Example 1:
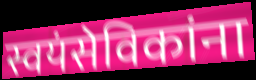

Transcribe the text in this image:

स्वयंसेविकांना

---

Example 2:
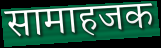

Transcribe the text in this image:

सामाहजक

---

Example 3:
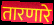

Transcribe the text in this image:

तारणारे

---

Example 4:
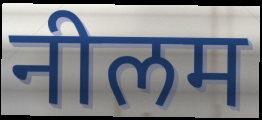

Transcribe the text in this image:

नीलम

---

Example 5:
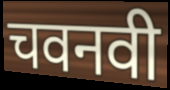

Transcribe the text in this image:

चवनवी